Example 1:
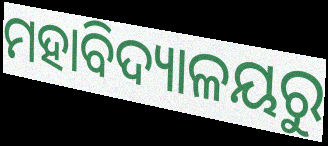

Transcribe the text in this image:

ମହାବିଦ୍ୟାଳୟରୁ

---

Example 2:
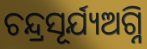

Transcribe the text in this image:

ଚନ୍ଦ୍ରସୂର୍ଯ୍ୟଅଗ୍ନି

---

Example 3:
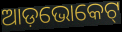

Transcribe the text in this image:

ଆଡ଼ଭୋକେଟ୍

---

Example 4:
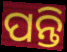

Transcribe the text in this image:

ପନ୍ତି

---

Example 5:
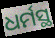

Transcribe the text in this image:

ଧର୍ମସ୍ଥ